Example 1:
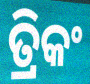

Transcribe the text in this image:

ତ୍ରିକଂ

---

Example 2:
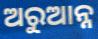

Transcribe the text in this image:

ଅରୁଆନ୍ନ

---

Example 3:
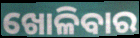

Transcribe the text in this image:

ଖୋଳିବାର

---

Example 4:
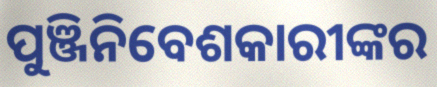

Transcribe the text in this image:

ପୁଞ୍ଜିନିବେଶକାରୀଙ୍କର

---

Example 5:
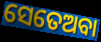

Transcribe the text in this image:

ସେତେଅବା